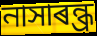
নাসাৰন্ধ্ৰ